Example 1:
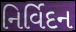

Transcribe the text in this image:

નિર્વિદન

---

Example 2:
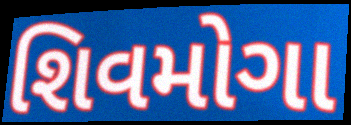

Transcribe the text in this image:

શિવમોગા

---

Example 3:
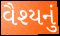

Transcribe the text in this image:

વૈશ્યનું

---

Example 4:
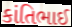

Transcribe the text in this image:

કાંતિભાઈ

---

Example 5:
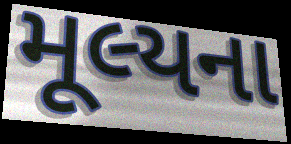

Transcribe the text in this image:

મૂલ્યના